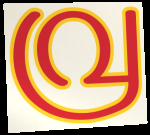
വ്ര